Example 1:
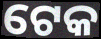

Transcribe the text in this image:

ଟେକ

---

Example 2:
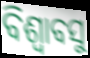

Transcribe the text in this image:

ବିଶ୍ୱାବସୁ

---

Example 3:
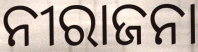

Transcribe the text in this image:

ନୀରାଜନା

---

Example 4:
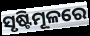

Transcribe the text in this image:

ସୃଷ୍ଟିମୂଳରେ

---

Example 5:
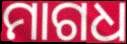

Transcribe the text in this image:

ମାଗଧ